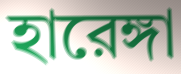
হারেঙ্গা